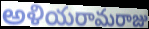
అళియరామరాజు